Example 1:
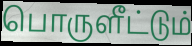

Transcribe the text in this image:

பொருளீட்டும்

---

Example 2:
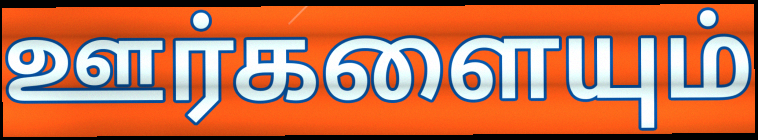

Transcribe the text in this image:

ஊர்களையும்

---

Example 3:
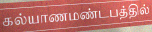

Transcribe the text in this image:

கல்யாணமண்டபத்தில்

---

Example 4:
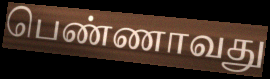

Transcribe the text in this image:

பெண்ணாவது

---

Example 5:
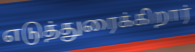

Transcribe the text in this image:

எடுத்துரைக்கிறார்